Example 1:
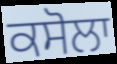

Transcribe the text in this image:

ਕਸੋਲਾ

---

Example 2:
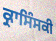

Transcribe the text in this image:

ਕ੍ਰਾਸਿੰਸਕੀ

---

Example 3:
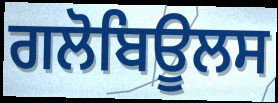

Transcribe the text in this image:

ਗਲੋਬਿਊਲਸ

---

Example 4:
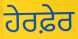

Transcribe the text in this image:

ਹੇਰਫ਼ੇਰ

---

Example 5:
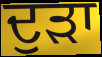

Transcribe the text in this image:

ਦੁੜਾ